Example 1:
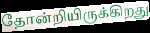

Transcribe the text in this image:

தோன்றியிருக்கிறது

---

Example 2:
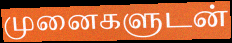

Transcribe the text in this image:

முனைகளுடன்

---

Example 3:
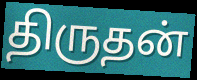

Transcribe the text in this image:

திருதன்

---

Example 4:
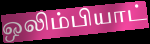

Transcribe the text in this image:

ஒலிம்பியாட்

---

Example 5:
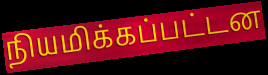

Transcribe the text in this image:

நியமிக்கப்பட்டன